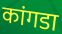
कांगडा